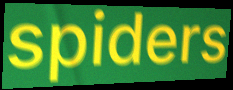
spiders